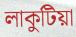
লাকুটিয়া